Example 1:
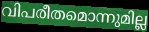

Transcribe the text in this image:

വിപരീതമൊന്നുമില്ല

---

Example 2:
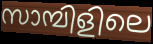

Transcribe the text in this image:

സാമ്പിളിലെ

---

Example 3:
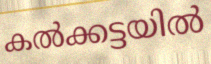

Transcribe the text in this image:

കൽക്കട്ടയിൽ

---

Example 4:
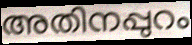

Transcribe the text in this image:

അതിനപ്പുറം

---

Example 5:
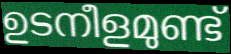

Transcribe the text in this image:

ഉടനീളമുണ്ട്